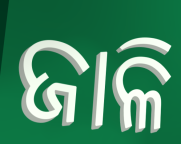
ଜାଳି